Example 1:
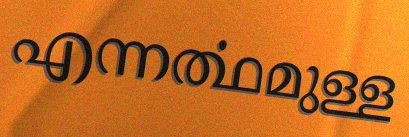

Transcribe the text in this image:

എന്നൎത്ഥമുള്ള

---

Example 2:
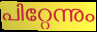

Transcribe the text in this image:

പിറ്റേന്നും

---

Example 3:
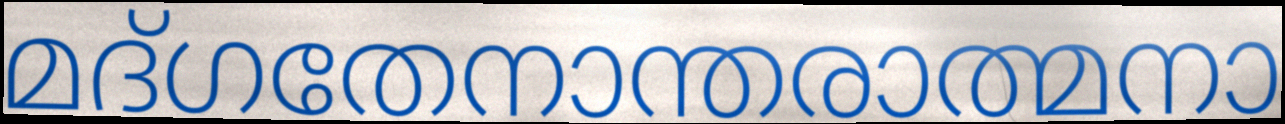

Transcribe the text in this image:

മദ്ഗതേനാന്തരാത്മനാ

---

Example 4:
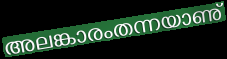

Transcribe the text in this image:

അലങ്കാരംതന്നയാണു്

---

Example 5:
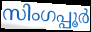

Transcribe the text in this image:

സിംഗപ്പൂർ